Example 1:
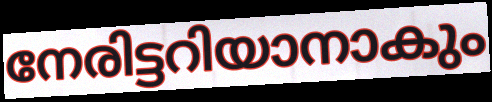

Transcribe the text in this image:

നേരിട്ടറിയാനാകും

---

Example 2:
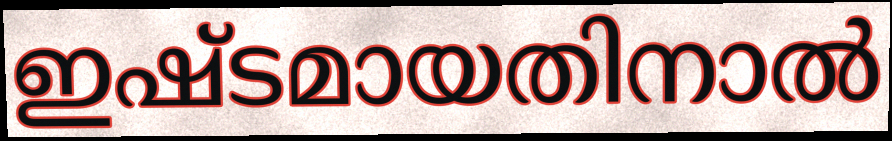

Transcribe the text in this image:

ഇഷ്ടമായതിനാൽ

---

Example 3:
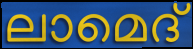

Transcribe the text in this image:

ലാമെദ്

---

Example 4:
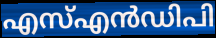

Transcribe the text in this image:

എസ്എൻഡിപി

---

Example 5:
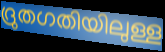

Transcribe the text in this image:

ദ്രുതഗതിയിലുള്ള